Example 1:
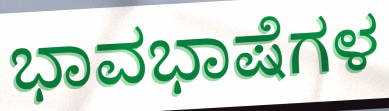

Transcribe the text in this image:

ಭಾವಭಾಷೆಗಳ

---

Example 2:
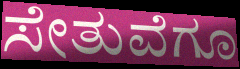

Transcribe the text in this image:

ಸೇತುವೆಗೂ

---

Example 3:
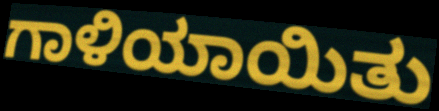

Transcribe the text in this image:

ಗಾಳಿಯಾಯಿತು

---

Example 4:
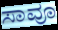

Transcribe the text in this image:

ಸಾವೂ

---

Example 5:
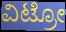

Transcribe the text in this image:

ವಿಟ್ರೋ